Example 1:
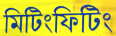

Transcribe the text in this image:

মিটিংফিটিং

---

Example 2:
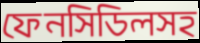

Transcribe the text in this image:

ফেনসিডিলসহ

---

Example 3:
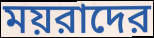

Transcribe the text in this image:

ময়রাদের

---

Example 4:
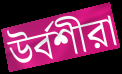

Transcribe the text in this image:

উর্বশীরা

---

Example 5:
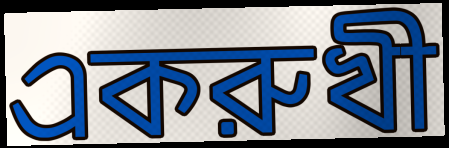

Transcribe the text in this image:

একরুখী